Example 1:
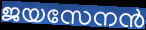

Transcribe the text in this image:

ജയസേനൻ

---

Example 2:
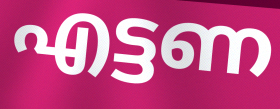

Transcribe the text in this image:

എട്ടണ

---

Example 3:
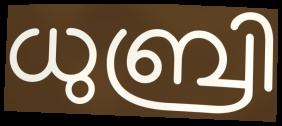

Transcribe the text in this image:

ധുബ്രി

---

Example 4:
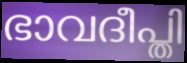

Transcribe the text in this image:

ഭാവദീപ്തി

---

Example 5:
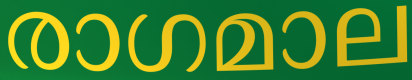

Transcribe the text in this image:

രാഗമാല